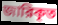
জারিকৃত